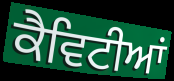
ਕੈਵਿਟੀਆਂ